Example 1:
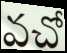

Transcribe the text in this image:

వచో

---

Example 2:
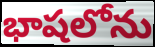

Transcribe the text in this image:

భాషలోను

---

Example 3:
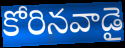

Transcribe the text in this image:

కోరినవాడై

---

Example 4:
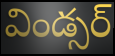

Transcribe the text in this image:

విండ్సర్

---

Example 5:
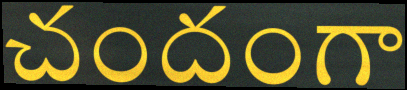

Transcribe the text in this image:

చందంగా